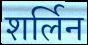
शर्लिन